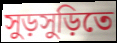
সুড়সুড়িতে